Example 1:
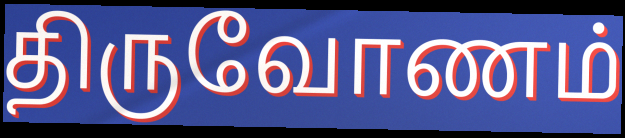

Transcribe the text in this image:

திருவோணம்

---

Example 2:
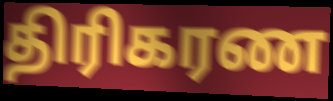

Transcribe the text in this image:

திரிகரண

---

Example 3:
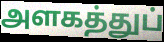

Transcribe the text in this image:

அளகத்துப்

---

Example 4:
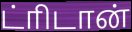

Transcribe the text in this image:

ட்ரிடான்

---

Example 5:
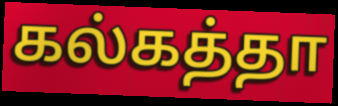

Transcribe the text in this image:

கல்கத்தா